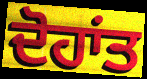
ਦੋਹਾਂਤ